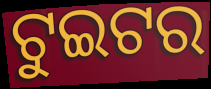
ଟୁଇଟର